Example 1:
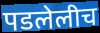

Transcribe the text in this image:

पडलेलीच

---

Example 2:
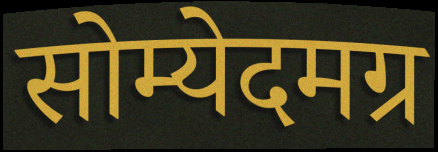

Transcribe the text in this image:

सोम्येदमग्र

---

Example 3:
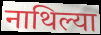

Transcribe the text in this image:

नाथिल्या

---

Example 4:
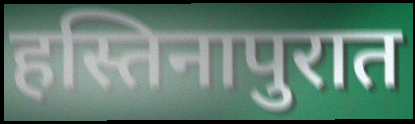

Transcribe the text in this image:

हस्तिनापुरात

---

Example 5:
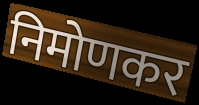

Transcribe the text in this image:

निमोणकर